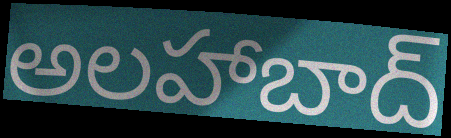
అలహాబాద్